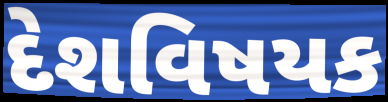
દેશવિષયક